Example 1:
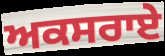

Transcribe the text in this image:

ਅਕਸਰਾਏ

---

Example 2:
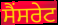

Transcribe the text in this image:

ਸੈਂਸਰੇਟ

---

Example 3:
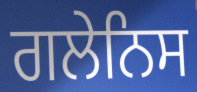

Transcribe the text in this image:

ਗਲੇਨਿਸ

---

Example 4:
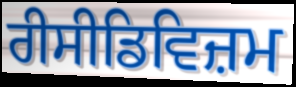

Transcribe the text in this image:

ਰੀਸੀਡਿਵਿਜ਼ਮ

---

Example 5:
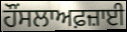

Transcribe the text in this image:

ਹੌਂਸਲਾਅਫ਼ਜ਼ਾਈ